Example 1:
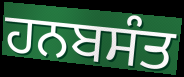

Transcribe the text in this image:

ਹਨਬਸੰਤ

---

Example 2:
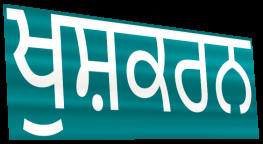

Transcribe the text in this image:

ਖੁਸ਼ਕਰਨ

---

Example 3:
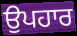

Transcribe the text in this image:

ਉਪਹਾਰ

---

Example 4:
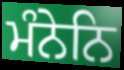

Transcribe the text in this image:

ਮੰਨੇਨਿ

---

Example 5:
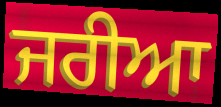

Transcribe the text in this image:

ਜਰੀਆ